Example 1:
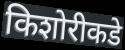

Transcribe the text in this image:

किशोरीकडे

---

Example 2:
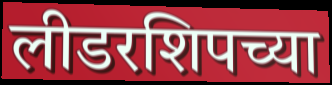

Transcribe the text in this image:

लीडरशिपच्या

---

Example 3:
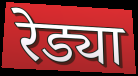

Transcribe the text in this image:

रेड्या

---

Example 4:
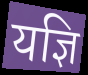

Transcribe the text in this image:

यज्ञि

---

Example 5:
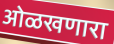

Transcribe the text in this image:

ओळखणारा